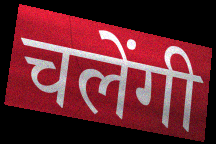
चलेंगी